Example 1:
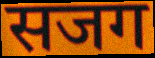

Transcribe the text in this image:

सजग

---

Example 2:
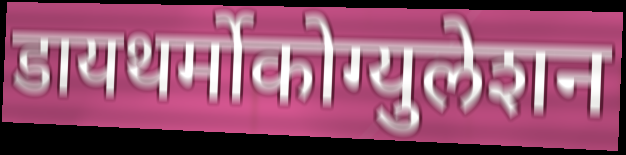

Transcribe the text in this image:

डायथर्मोकोग्युलेशन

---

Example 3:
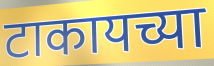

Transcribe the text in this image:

टाकायच्या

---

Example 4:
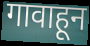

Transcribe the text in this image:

गावाहून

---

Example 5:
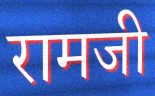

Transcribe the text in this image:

रामजी